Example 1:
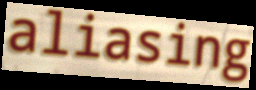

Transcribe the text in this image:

aliasing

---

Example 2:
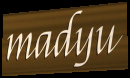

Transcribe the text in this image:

madyu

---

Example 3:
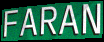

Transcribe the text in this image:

FARAN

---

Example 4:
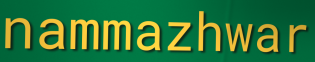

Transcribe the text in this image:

nammazhwar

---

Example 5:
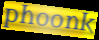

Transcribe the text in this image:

phoonk